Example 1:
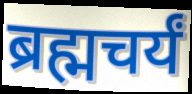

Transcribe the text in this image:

ब्रह्मचर्यं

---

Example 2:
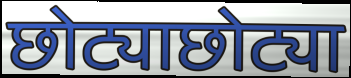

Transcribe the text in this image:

छोट्याछोट्या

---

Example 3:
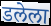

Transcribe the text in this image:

डलेला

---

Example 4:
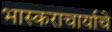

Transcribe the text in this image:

भास्कराचार्याचे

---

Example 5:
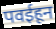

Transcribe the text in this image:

पवईहून